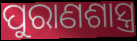
ପୁରାଣଶାସ୍ତ୍ର